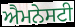
ਐਮਨੇਸਟੀ